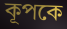
কূপকে